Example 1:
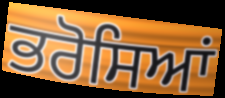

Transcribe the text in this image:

ਭਰੋਸਿਆਂ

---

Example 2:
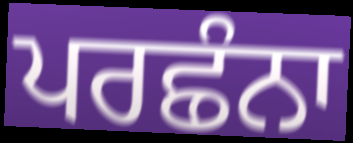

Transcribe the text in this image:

ਪਰਛੰਨਾ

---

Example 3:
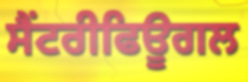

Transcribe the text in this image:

ਸੈਂਟਰੀਫਿਊਗਲ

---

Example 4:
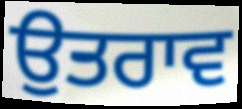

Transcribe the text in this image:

ਉਤਰਾਵ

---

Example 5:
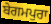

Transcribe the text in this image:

ਬੇਗਮਪੁਰਾ